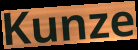
Kunze